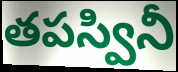
తపస్వినీ